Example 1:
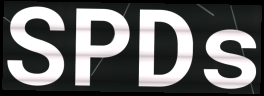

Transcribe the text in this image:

SPDs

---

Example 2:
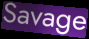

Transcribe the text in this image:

Savage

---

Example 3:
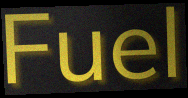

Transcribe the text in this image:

Fuel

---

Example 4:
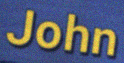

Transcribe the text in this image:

John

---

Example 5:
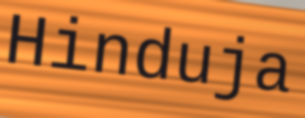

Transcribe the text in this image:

Hinduja